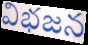
విభజన